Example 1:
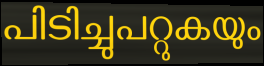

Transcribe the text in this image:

പിടിച്ചുപറ്റുകയും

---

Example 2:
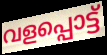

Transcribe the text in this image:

വളപ്പൊട്ട്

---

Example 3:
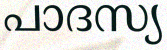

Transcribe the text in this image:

പാദസ്യ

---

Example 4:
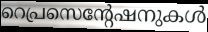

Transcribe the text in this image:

റെപ്രസെന്റേഷനുകൾ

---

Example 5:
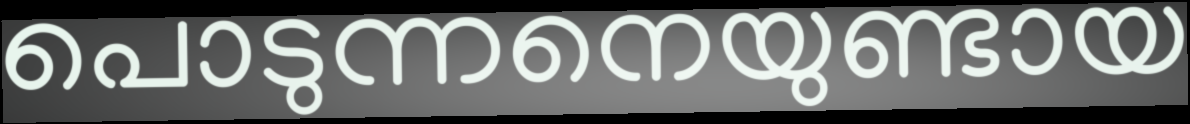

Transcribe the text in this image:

പൊടുന്നനെയുണ്ടായ